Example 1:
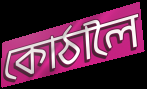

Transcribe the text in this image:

কোঠালৈ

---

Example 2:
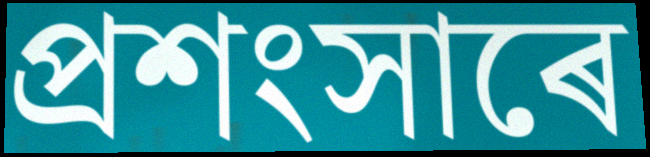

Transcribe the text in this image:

প্ৰশংসাৰে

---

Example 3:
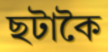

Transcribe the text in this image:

ছটাকৈ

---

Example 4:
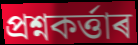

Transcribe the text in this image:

প্ৰশ্নকৰ্ত্তাৰ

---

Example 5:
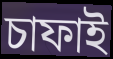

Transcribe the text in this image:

চাফাই